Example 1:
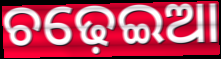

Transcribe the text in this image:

ଚଢ଼େଇଆ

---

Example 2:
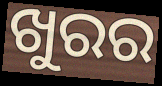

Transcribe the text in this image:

ଖୁରର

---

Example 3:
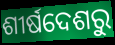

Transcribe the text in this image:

ଶୀର୍ଷଦେଶରୁ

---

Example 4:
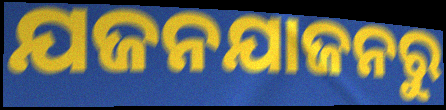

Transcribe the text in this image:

ଯଜନଯାଜନରୁ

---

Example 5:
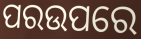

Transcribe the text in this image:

ପରଉପରେ